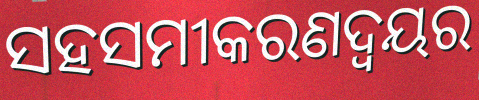
ସହସମୀକରଣଦ୍ୱୟର